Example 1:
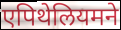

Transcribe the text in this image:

एपिथेलियमने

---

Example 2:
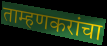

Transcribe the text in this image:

ताम्हणकरांचा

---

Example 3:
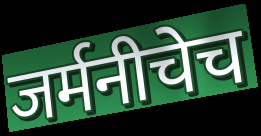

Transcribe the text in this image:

जर्मनीचेच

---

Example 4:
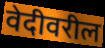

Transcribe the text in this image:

वेदीवरील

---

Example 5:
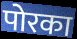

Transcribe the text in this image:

पोरका